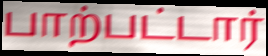
பாற்பட்டார்